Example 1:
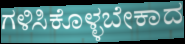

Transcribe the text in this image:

ಗಳಿಸಿಕೊಳ್ಳಬೇಕಾದ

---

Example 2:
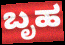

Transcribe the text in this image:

ಬೃಹ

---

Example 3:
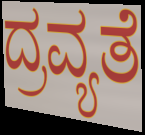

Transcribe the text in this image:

ದ್ರವ್ಯತೆ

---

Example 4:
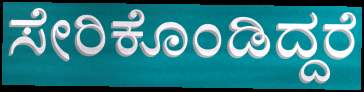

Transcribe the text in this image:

ಸೇರಿಕೊಂಡಿದ್ದರೆ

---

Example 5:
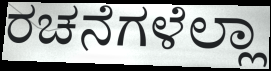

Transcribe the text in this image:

ರಚನೆಗಳೆಲ್ಲಾ